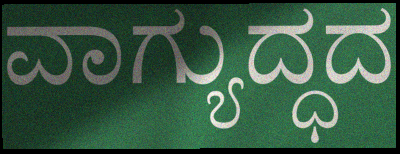
ವಾಗ್ಯುದ್ಧದ